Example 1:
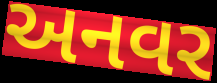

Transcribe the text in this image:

અનવર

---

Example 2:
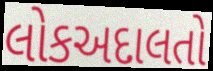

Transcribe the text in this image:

લોકઅદાલતો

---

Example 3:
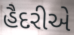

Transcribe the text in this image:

હૈદરીએ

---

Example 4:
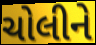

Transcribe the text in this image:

ચોલીને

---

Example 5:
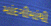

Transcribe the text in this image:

માંદગીમાંથી